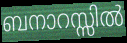
ബനാറസ്സിൽ